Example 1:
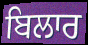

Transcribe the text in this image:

ਬਿਲਾਰ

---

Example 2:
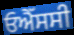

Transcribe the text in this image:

ਓਐੱਸਸੀ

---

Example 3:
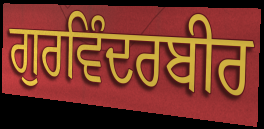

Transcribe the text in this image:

ਗੁਰਵਿੰਦਰਬੀਰ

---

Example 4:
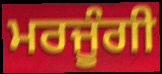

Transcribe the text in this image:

ਮਰਜੂੰਗੀ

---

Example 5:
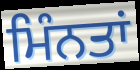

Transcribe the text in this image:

ਮਿੰਨਤਾਂ